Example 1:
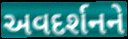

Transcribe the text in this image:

અવદર્શનને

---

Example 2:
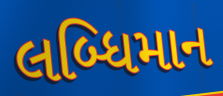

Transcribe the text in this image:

લબ્ધિમાન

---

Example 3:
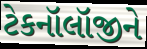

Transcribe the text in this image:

ટેકનૉલૉજીને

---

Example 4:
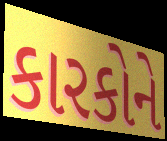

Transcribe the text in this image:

કારકોને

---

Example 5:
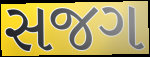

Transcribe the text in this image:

સજગ